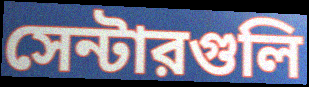
সেন্টারগুলি